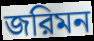
জরিমন